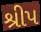
શ્રીપ